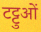
टट्टुओं